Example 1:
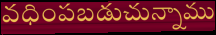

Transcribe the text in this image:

వధింపబడుచున్నాము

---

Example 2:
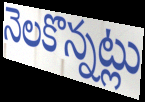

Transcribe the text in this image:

నెలకొన్నట్లు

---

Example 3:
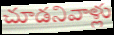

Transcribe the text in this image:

చూడనివాళ్లు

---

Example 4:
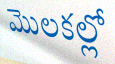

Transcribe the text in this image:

మొలకల్లో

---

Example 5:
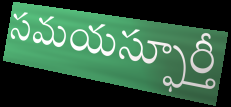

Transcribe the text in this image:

సమయస్ఫూర్తీ